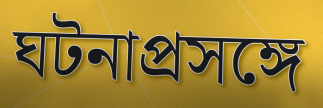
ঘটনাপ্রসঙ্গে